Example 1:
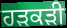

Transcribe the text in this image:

ਹੜਕੜੀ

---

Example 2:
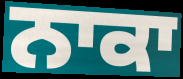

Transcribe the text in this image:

ਨਾਕਾ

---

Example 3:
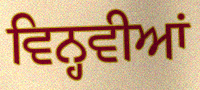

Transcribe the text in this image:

ਵਿਨ੍ਹਵੀਆਂ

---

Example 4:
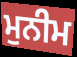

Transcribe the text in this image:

ਮੁਨੀਮ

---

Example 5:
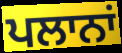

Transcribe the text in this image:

ਪਲਾਨਾਂ